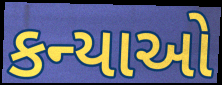
કન્યાઓ